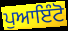
ਪੁਆਇੰਟੋ